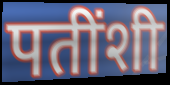
पतींशी